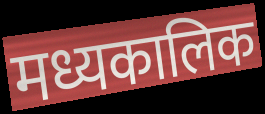
मध्यकालिक